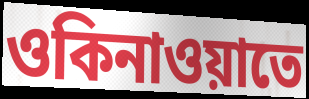
ওকিনাওয়াতে